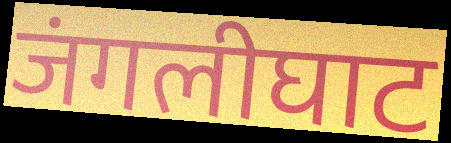
जंगलीघाट